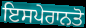
ਇਸਪੇਰਾਨਤੋ